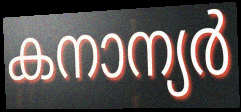
കനാന്യർ